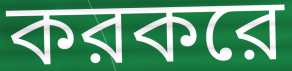
করকরে